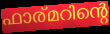
ഫാര്മറിന്റെ